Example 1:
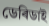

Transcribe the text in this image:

ডেৰিডাই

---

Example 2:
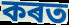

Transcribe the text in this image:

কৰত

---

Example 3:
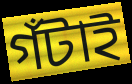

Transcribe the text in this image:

গঁটাই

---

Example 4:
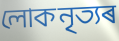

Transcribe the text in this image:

লোকনৃত্যৰ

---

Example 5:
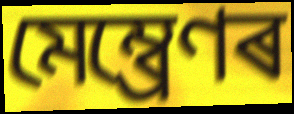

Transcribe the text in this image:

মেম্ব্ৰেণৰ